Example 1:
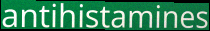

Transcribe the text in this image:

antihistamines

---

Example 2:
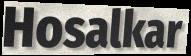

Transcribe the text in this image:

Hosalkar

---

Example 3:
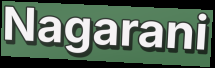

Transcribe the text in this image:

Nagarani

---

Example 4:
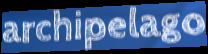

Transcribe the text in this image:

archipelago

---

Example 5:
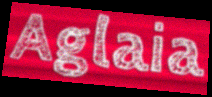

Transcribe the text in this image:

Aglaia